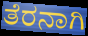
ತೆರನಾಗಿ